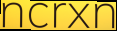
ncrxn